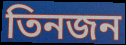
তিনজন